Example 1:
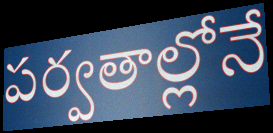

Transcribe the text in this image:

పర్వతాల్లోనే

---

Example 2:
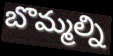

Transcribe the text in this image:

బొమ్మల్ని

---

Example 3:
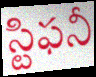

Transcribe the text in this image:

స్టిఫనీ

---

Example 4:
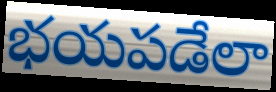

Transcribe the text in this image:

భయపడేలా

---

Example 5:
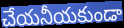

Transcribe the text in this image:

చేయనీయకుండా